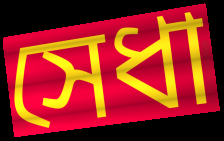
সেধা